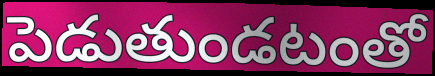
పెడుతుండటంతో